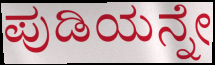
ಪುಡಿಯನ್ನೇ